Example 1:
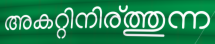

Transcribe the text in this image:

അകറ്റിനിര്ത്തുന്ന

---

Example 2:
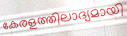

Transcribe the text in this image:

കേരളത്തിലാദ്യമായി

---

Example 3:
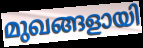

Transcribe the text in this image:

മുഖങ്ങളായി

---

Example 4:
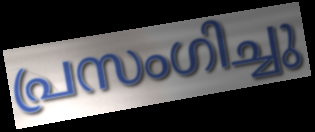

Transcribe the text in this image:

പ്രസംഗിച്ചു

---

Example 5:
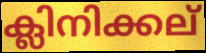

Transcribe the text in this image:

ക്ലിനിക്കല്